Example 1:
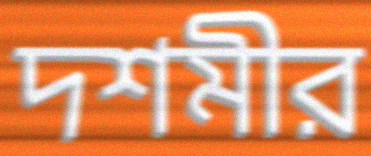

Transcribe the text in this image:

দশমীর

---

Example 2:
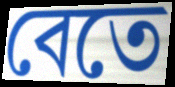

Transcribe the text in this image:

বেতে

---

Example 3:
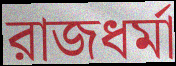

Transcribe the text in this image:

রাজধর্মা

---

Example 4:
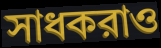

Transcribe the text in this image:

সাধকরাও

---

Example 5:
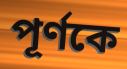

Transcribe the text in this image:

পূর্ণকে